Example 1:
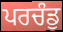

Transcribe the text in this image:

ਪਰਚੰਡੁ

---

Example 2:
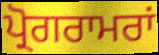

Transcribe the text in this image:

ਪ੍ਰੋਗਰਾਮਰਾਂ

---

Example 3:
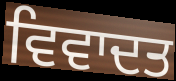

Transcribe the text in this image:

ਵਿਵਾਦਤ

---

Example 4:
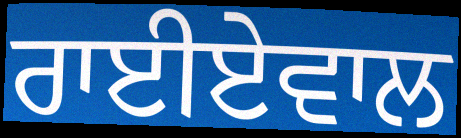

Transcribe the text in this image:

ਰਾਈਏਵਾਲ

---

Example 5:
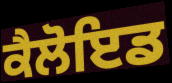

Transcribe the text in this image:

ਕੈਲੋਇਡ